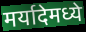
मर्यादेमध्ये